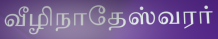
வீழிநாதேஸ்வரர்